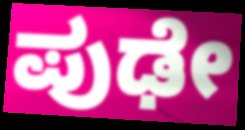
ಪುಢೇ